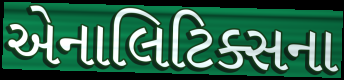
એનાલિટિક્સના